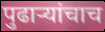
पुढाऱ्यांचाच